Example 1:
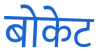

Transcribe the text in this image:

बोकेट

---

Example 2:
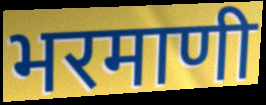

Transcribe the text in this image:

भरमाणी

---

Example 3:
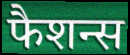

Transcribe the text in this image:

फैशन्स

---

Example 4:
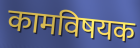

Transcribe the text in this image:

कामविषयक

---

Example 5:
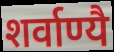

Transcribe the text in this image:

शर्वाण्यै